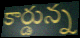
కార్డున్న